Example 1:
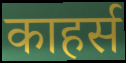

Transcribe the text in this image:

काहर्स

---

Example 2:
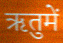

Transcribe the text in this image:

ऋतुमें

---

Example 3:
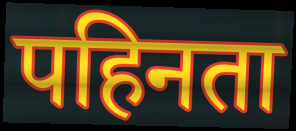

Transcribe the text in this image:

पहिनता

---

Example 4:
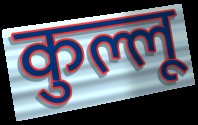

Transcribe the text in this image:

कुल्लू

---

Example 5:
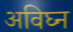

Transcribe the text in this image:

अविघ्न